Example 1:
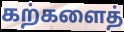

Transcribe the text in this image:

கற்களைத்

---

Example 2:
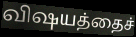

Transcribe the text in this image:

விஷயத்தைச்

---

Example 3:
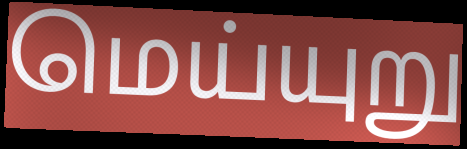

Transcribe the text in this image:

மெய்யுறு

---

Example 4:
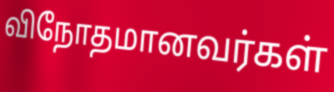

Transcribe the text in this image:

விநோதமானவர்கள்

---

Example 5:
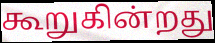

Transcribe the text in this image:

கூறுகின்றது